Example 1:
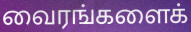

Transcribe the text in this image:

வைரங்களைக்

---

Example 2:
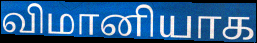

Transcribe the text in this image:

விமானியாக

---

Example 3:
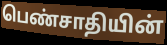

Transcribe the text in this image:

பெண்சாதியின்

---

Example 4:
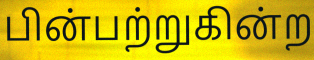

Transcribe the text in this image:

பின்பற்றுகின்ற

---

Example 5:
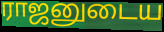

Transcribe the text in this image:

ராஜனுடைய